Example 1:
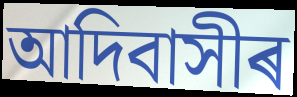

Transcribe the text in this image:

আদিবাসীৰ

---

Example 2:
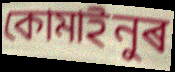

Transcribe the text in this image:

কোমাইনুৰ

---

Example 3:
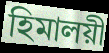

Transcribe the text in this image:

হিমালয়ী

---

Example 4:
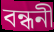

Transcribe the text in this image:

বন্ধনী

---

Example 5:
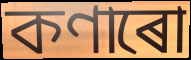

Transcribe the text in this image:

কণাৰো